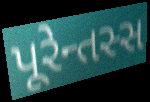
પૂરેન્તસ્સ